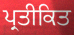
ਪ੍ਰਤੀਕਿਤ